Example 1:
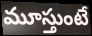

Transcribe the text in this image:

మూస్తుంటే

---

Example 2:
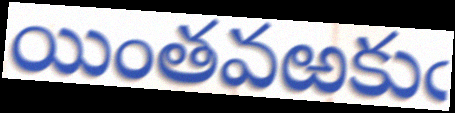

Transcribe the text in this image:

యింతవఱకుఁ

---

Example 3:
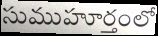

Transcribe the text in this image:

సుముహూర్తంలో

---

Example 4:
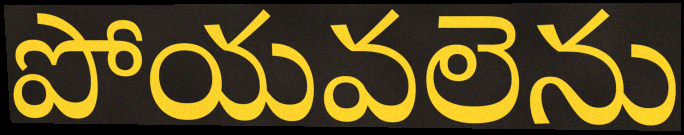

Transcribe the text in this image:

పోయవలెను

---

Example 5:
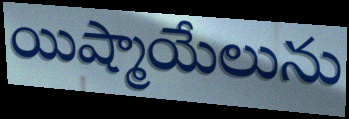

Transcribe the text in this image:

యిష్మాయేలును